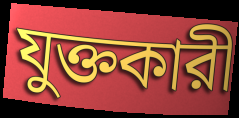
যুক্তকারী